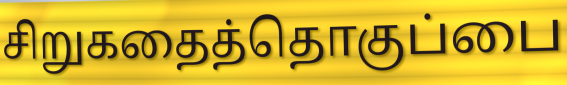
சிறுகதைத்தொகுப்பை